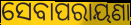
ସେବାପରାୟଣା